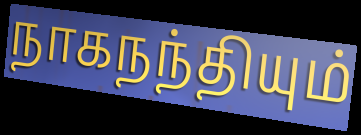
நாகநந்தியும்